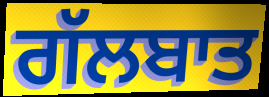
ਗੱਲਬਾਤ